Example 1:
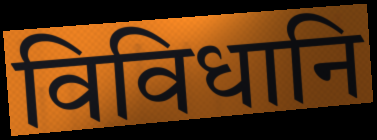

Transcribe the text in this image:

विविधानि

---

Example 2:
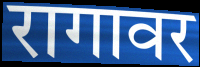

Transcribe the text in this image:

रागावर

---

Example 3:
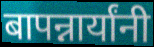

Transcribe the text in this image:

बापन्नार्यांनी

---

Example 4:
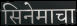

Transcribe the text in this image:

सिनेमाचा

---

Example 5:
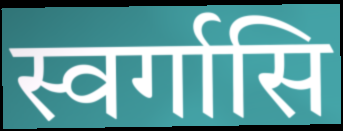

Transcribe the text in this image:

स्वर्गासि